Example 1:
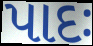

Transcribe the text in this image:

પાદઃ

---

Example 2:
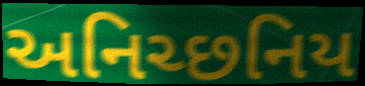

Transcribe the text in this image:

અનિચ્છનિય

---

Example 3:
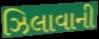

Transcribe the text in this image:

ઝિલાવાની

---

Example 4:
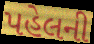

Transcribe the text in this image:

પહેલની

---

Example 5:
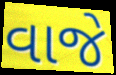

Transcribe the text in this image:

વાજે